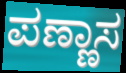
ಪಣ್ಣಾಸ